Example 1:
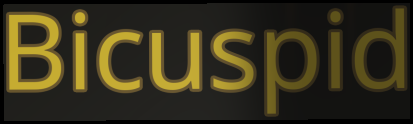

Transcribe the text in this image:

Bicuspid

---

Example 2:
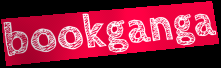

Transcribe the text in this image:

bookganga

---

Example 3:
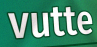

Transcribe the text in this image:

vutte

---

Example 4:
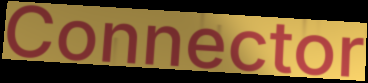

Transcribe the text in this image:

Connector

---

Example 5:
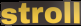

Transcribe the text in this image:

stroll